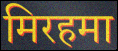
मिरहमा